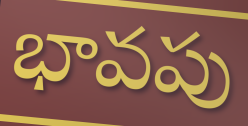
భావపు